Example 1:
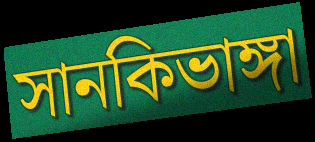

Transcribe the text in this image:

সানকিভাঙ্গা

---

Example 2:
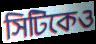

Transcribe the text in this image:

সিটিকেও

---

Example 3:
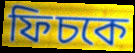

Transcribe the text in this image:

ফিচকে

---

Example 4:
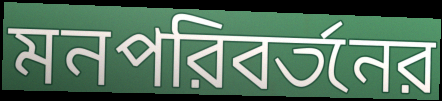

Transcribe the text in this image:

মনপরিবর্তনের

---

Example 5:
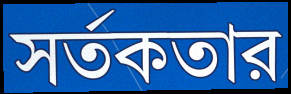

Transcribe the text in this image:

সর্তকতার